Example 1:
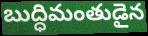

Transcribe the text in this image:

బుద్ధిమంతుడైన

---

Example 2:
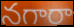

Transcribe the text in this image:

నగారా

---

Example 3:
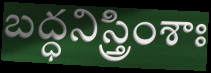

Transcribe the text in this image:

బద్ధనిస్త్రింశాః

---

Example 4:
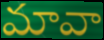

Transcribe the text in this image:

మావా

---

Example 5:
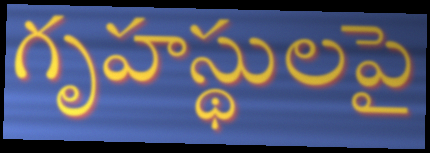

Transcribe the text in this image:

గృహస్థులపై